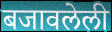
बजावलेली